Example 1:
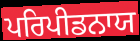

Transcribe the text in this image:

ਪਰਿਪੀਡਨਾਯ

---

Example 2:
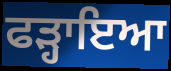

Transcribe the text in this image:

ਫੜ੍ਹਾਇਆ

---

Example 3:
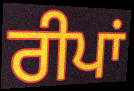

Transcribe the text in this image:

ਰੀਪਾਂ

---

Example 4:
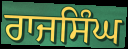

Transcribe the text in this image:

ਰਾਜਸਿੰਘ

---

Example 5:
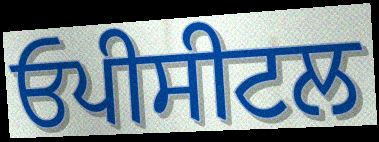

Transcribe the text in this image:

ਓਪੀਸੀਟਲ